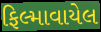
ફિલ્માવાયેલ